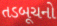
તડબૂચનો